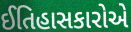
ઈતિહાસકારોએ